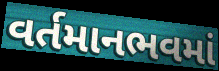
વર્તમાનભવમાં